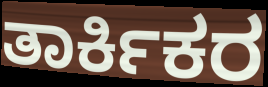
ತಾರ್ಕಿಕರ